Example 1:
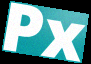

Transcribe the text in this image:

Px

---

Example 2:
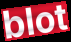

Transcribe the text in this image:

blot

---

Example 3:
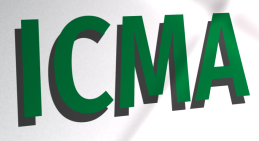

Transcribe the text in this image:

ICMA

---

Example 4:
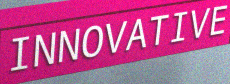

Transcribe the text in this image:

INNOVATIVE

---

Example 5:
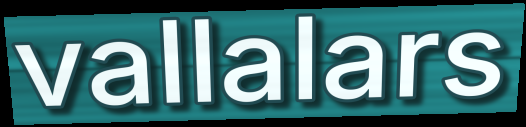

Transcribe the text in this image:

vallalars